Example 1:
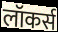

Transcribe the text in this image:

लॉकर्स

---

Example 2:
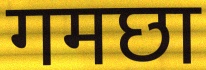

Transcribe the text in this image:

गमछा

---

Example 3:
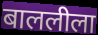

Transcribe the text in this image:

बाललीला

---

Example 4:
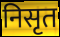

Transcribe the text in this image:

निसृत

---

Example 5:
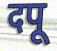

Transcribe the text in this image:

दपू